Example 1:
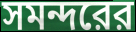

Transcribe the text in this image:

সমন্দরের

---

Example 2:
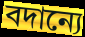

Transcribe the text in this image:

বদান্যে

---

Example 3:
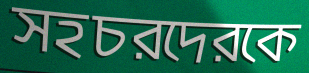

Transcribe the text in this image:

সহচরদেরকে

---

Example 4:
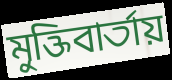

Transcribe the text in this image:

মুক্তিবার্তায়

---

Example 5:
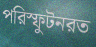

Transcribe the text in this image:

পরিস্ফুটনরত